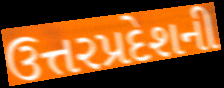
ઉત્તરપ્રદેશની